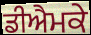
ਡੀਐਮਕੇ